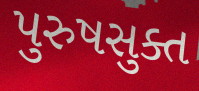
પુરુષસુક્ત